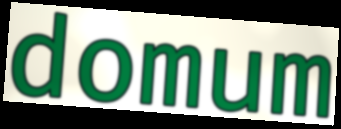
domum